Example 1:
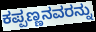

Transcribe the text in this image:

ಕಪ್ಪಣ್ಣನವರನ್ನು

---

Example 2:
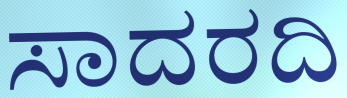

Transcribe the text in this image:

ಸಾದರದಿ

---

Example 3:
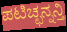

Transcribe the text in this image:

ಪಟಿಚ್ಛನ್ನನ್ತಿ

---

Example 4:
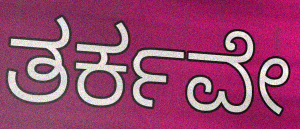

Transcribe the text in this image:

ತರ್ಕವೇ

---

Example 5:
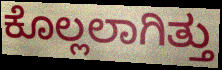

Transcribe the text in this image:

ಕೊಲ್ಲಲಾಗಿತ್ತು